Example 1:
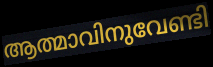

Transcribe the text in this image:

ആത്മാവിനുവേണ്ടി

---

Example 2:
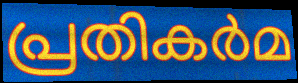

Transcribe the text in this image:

പ്രതികർമ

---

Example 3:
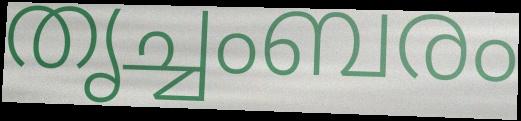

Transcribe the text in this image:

തൃച്ചംബരം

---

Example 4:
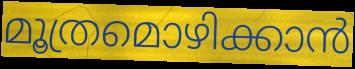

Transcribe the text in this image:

മൂത്രമൊഴിക്കാൻ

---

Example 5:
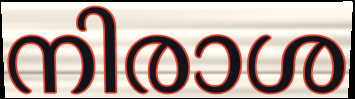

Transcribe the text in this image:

നിരാശ